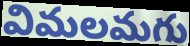
విమలమగు